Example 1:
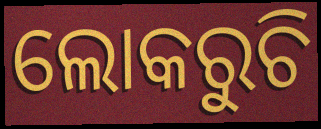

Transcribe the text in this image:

ଲୋକରୁଚି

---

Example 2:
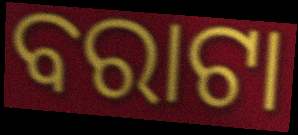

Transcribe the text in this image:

ବରାଟା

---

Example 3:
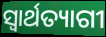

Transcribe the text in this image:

ସ୍ୱାର୍ଥତ୍ୟାଗୀ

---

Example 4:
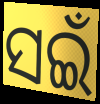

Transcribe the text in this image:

ସଇଁ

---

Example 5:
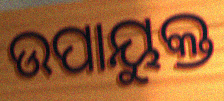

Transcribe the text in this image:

ଉପାୟୁକ୍ତ